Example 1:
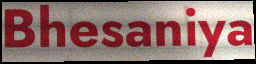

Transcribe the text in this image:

Bhesaniya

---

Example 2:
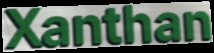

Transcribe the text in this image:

Xanthan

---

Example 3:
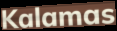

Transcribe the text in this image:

Kalamas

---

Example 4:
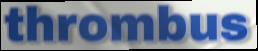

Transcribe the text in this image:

thrombus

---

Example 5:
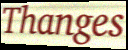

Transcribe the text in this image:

Thanges